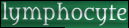
lymphocyte